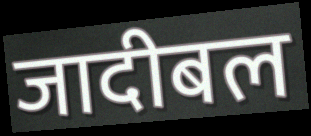
जादीबल